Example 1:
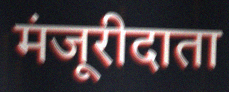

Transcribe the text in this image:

मंजूरीदाता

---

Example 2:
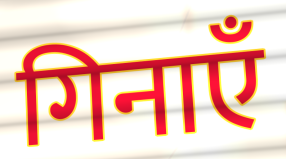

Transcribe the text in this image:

गिनाएँ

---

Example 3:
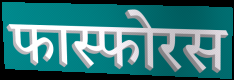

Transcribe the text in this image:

फास्‍फोरस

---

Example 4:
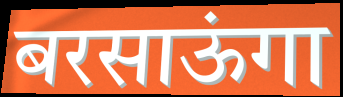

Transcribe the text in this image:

बरसाऊंगा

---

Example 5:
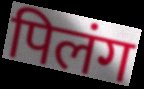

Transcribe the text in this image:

पिलंग